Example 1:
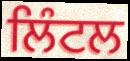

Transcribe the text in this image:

ਲਿੰਟਲ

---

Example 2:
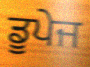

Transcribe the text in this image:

ਡੂਪੇਜ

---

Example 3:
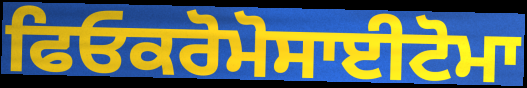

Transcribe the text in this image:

ਫਿਓਕਰੋਮੋਸਾਈਟੋਮਾ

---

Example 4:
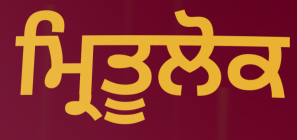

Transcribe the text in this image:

ਮ੍ਰਿਤੂਲੋਕ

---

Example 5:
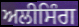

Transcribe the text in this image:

ਅਲੀਸਿੰਗ